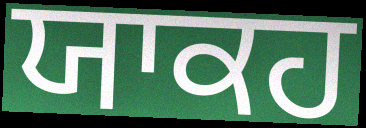
ਯਾਕਹ